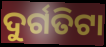
ଦୁର୍ଗତିଟା